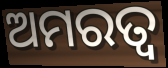
ଅମରତ୍ବ